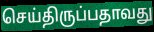
செய்திருப்பதாவது